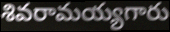
శివరామయ్యగారు